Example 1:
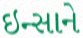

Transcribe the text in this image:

ઇન્સાને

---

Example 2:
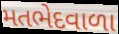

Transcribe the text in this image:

મતભેદવાળા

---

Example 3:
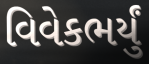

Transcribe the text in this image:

વિવેકભર્યું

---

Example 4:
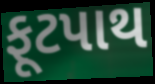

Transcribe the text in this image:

ફૂટપાથ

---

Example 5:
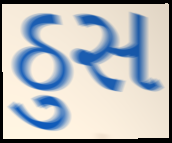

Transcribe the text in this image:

ઠુસ